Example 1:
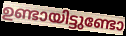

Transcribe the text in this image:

ഉണ്ടായിട്ടുണ്ടോ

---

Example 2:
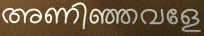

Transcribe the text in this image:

അണിഞ്ഞവളേ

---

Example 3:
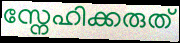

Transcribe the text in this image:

സ്നേഹിക്കരുത്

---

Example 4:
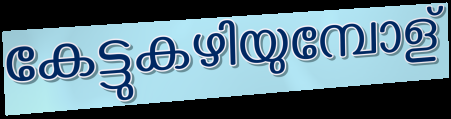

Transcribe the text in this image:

കേട്ടുകഴിയുമ്പോള്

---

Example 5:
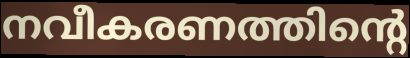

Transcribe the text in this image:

നവീകരണത്തിന്റെ